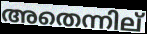
അതെന്നില്